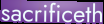
sacrificeth